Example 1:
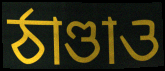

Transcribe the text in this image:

ঠাণ্ডাও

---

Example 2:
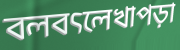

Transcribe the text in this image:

বলবৎলেখাপড়া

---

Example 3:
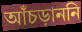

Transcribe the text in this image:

আঁচড়াননি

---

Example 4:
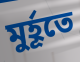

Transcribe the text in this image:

মুর্হূতে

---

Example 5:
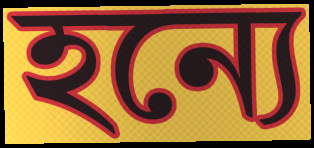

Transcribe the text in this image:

হন্যে